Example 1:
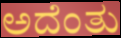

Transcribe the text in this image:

ಅದೆಂತು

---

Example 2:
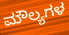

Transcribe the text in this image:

ಮೌಲ್ಯಗಳ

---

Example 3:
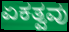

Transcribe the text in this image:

ಏಕತ್ವವು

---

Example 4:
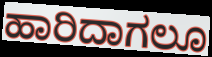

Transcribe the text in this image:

ಹಾರಿದಾಗಲೂ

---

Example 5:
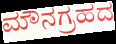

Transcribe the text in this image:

ಮೌನಗ್ರಹದ